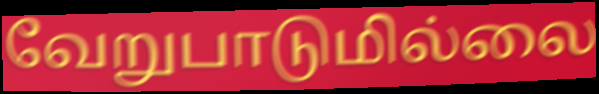
வேறுபாடுமில்லை